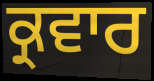
ਕ੍ਰਵਾਰ